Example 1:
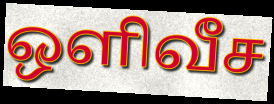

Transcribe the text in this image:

ஒளிவீச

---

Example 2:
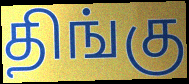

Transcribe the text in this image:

திங்கு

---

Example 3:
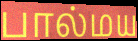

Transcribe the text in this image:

பால்மய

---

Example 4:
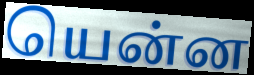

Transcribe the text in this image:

யென்ன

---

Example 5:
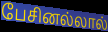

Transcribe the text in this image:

பேசினல்லால்